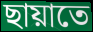
ছায়াতে